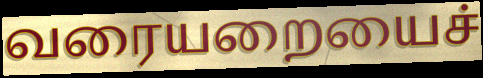
வரையறையைச்